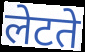
लेटते